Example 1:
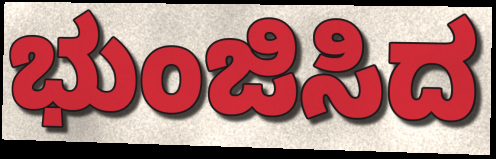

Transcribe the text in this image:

ಭುಂಜಿಸಿದ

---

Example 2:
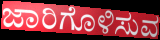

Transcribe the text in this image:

ಜಾರಿಗೊಳಿಸುವ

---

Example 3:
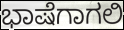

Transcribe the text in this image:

ಭಾಷೆಗಾಗಲಿ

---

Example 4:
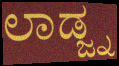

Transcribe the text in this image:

ಲಾಡ್ಜ್ನ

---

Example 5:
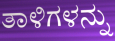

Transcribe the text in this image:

ತಾಳಿಗಳನ್ನು